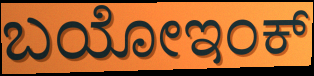
ಬಯೋಇಂಕ್